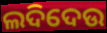
ଲଦିଦେଉ